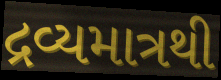
દ્રવ્યમાત્રથી